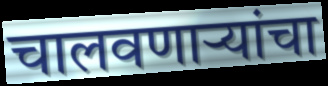
चालवणाऱ्यांचा